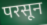
परसून